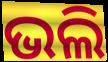
ଭଲି